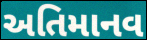
અતિમાનવ